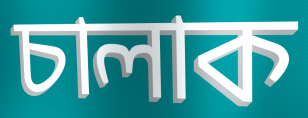
চালাক